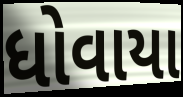
ધોવાયા